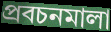
প্রবচনমালা